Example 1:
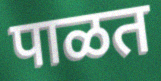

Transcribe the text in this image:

पाळत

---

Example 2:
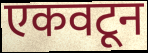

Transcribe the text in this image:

एकवटून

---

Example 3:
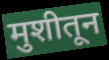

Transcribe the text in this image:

मुशीतून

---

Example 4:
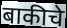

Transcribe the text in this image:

बाकीचे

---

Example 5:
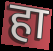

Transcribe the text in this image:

हा